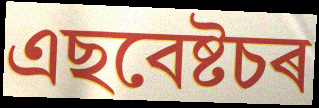
এছবেষ্টচৰ